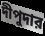
দীপুদার